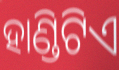
ହାଣ୍ଡିଟିଏ